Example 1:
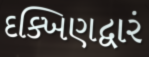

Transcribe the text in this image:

દક્ખિણદ્વારં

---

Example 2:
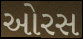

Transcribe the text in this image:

ઓરસ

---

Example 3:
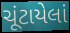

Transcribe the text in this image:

ચૂંટાયેલાં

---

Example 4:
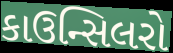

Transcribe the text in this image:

કાઉન્સિલરો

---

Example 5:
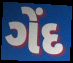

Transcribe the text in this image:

ગેંદ